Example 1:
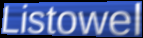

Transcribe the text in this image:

Listowel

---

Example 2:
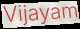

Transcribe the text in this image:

Vijayam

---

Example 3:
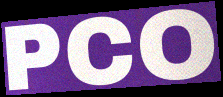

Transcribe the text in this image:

PCO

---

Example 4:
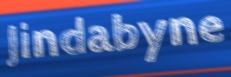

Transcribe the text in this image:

Jindabyne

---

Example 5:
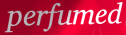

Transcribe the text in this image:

perfumed